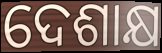
ଦେଶାକ୍ଷ